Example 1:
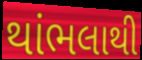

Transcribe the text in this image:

થાંભલાથી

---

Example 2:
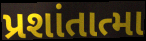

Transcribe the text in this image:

પ્રશાંતાત્મા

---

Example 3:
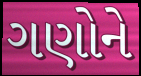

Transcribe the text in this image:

ગણોને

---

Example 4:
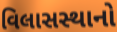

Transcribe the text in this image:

વિલાસસ્થાનો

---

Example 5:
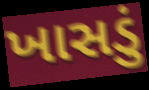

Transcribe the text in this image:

ખાસડું